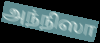
அந்நிஸா